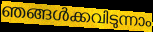
ഞങ്ങൾക്കവിടുന്നാം